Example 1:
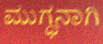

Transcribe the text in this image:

ಮುಗ್ಧನಾಗಿ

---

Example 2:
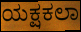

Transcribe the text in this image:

ಯಕ್ಷಕಲಾ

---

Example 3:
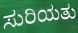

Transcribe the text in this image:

ಸುರಿಯತು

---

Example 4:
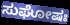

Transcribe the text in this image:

ಸುಘೋಷಃ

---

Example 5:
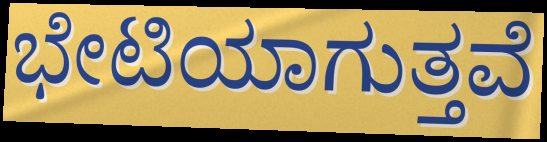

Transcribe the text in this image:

ಭೇಟಿಯಾಗುತ್ತವೆ